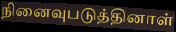
நினைவுபடுத்தினாள்